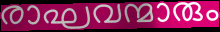
രാഘവന്മാരും